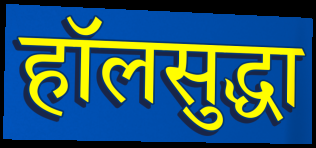
हॉलसुद्धा